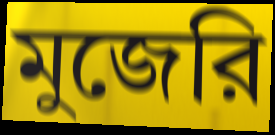
মুজেরি